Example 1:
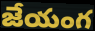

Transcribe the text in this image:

జేయంగ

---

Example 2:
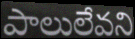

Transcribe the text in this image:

పాలులేవని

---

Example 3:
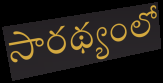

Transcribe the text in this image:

సారథ్యంలో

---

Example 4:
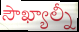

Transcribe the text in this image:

సౌఖ్యాల్నీ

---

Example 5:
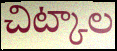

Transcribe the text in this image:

చిట్కాల